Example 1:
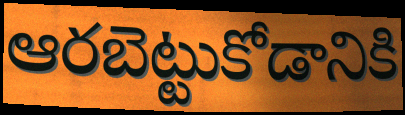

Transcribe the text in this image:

ఆరబెట్టుకోడానికి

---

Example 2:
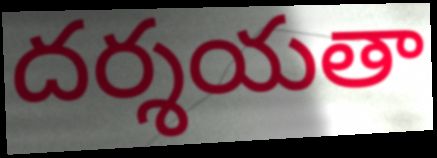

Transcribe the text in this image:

దర్శయతా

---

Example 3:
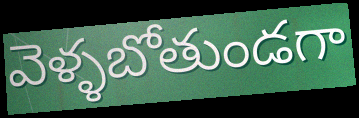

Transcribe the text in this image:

వెళ్ళబోతుండగా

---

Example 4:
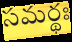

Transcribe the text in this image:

సమర్థః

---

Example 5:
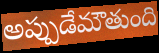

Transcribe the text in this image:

అప్పుడేమౌతుంది